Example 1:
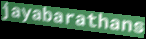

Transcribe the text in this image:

jayabarathans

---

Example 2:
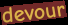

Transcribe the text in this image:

devour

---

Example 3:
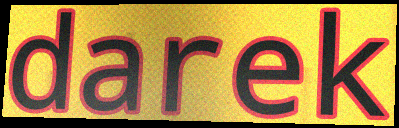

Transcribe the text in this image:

darek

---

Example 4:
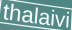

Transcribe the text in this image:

thalaivi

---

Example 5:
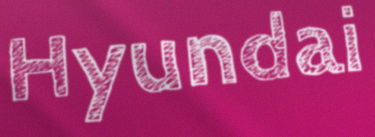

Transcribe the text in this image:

Hyundai